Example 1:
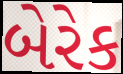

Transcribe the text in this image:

બેરેક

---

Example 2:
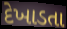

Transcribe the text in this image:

દેખાડતા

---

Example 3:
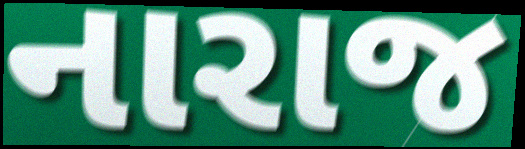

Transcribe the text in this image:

નારાજ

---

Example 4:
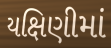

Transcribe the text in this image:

યક્ષિણીમાં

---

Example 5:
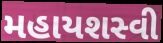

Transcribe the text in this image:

મહાયશસ્વી